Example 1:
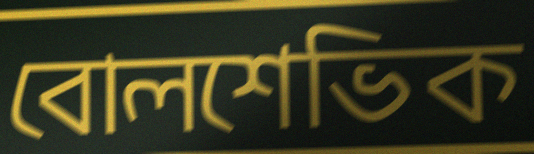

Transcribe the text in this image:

বোলশেভিক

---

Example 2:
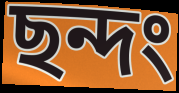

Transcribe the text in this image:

ছন্দং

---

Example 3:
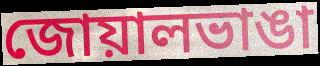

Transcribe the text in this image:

জোয়ালভাঙা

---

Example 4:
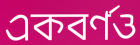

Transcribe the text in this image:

একবর্ণও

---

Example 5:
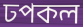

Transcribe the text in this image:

ঢপকল